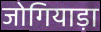
जोगियाड़ा